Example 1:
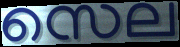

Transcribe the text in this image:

സെല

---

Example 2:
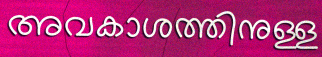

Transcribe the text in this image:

അവകാശത്തിനുള്ള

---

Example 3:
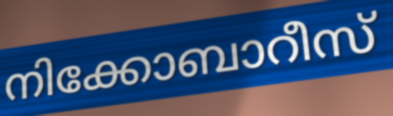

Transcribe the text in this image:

നിക്കോബാറീസ്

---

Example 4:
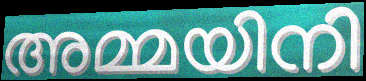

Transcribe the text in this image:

അമ്മയിനി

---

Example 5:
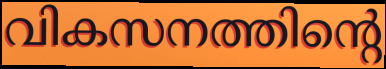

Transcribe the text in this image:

വികസനത്തിന്റെ